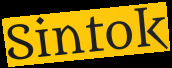
Sintok